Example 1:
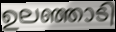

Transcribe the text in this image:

ഉലഞ്ഞാടി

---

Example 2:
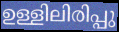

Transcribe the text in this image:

ഉള്ളിലിരിപ്പു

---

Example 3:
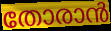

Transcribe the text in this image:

തോരാൻ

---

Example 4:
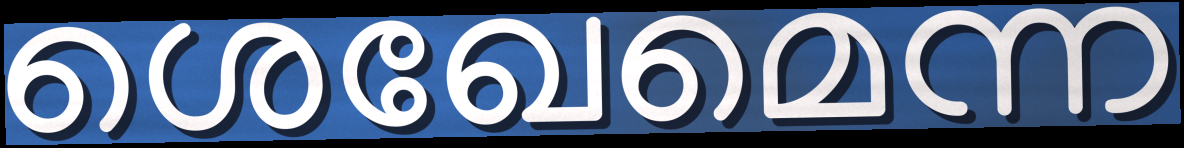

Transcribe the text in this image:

ശെഖേമെന്ന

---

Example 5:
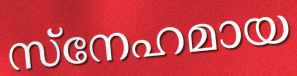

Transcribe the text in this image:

സ്നേഹമായ